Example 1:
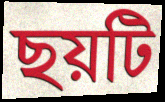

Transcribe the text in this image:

ছয়টি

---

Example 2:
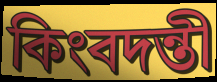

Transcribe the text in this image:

কিংবদন্তী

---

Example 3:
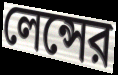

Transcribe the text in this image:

লেন্সের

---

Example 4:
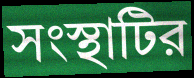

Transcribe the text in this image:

সংস্থাটির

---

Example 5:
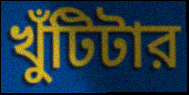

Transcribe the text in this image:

খুঁটিটার